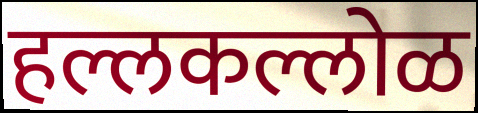
हल्लकल्लोळ